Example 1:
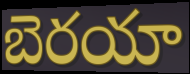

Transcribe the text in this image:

బెరయా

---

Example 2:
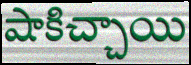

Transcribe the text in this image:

షాకిచ్చాయి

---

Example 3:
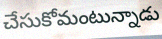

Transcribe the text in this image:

చేసుకోమంటున్నాడు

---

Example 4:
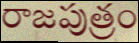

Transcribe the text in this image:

రాజపుత్రం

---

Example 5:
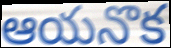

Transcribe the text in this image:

ఆయనొక